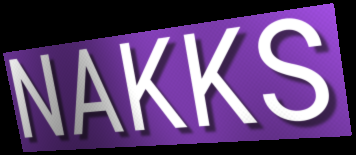
NAKKS